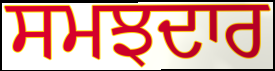
ਸਮਝਦਾਰ